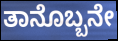
ತಾನೊಬ್ಬನೇ